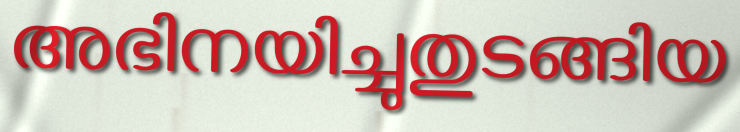
അഭിനയിച്ചുതുടങ്ങിയ